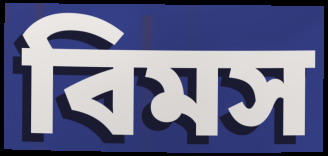
বিমস